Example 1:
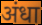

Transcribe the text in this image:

अंधा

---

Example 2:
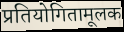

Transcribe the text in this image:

प्रतियोगितामूलक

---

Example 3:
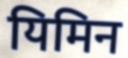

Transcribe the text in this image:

यिमिन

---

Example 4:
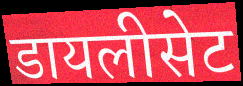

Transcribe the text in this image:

डायलीसेट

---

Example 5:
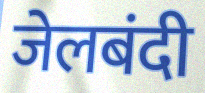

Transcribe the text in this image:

जेलबंदी